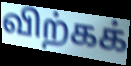
விற்கக்